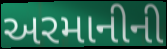
અરમાનીની